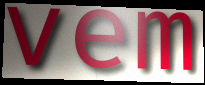
vem